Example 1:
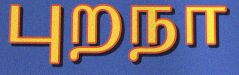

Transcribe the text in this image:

புறநா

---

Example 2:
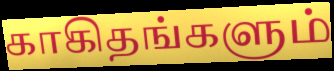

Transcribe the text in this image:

காகிதங்களும்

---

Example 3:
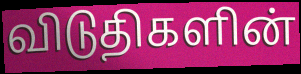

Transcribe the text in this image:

விடுதிகளின்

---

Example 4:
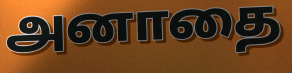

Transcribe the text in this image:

அனாதை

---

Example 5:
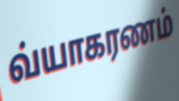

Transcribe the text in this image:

வ்யாகரணம்